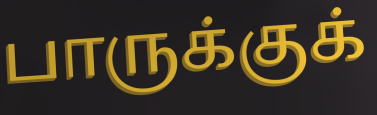
பாருக்குக்